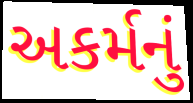
અકર્મનું